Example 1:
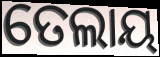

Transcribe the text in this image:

ତେଲାୟ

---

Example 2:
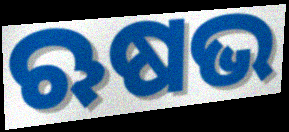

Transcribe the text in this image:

ଋଷଭ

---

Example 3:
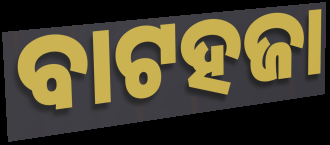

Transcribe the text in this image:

ବାଟହଜା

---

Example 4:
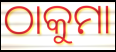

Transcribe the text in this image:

ଠାକୁମା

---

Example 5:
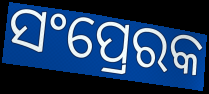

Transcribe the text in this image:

ସଂପ୍ରେରକ